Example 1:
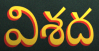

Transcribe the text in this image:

విశద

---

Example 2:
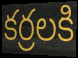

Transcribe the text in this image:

కర్రలకి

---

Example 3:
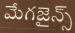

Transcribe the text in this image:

మేగజైన్స్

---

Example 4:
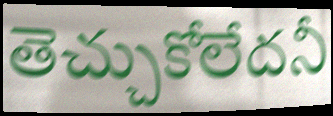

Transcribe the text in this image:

తెచ్చుకోలేదనీ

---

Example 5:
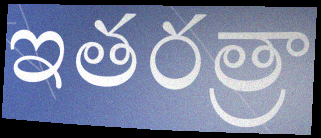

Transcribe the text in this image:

ఇతరత్రా